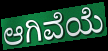
ಆಗಿವೆಯೆ